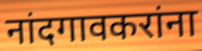
नांदगावकरांना